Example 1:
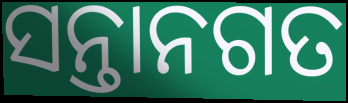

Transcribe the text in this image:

ସନ୍ତାନଗତ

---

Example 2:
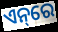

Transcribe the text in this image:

ଏନ୍‌ରେ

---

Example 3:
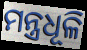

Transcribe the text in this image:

ମନ୍ତ୍ରଧୂଳି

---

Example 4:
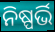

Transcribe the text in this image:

ନିଷ୍ପର୍ଭି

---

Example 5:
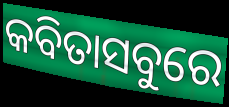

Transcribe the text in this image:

କବିତାସବୁରେ